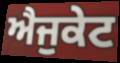
ਐਜੁਕੇਟ